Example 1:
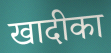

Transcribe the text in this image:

खादीका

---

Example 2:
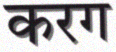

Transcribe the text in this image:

करग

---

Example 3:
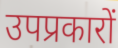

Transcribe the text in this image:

उपप्रकारों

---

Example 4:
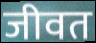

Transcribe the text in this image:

जीवत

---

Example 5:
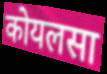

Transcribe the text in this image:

कोयलसा